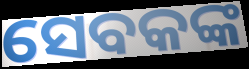
ସେବକଙ୍କ